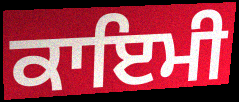
ਕਾਇਮੀ